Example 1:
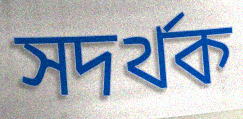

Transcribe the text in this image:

সদৰ্থক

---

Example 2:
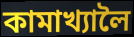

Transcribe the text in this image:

কামাখ্যালৈ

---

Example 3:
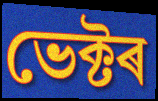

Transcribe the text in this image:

ভেক্টৰ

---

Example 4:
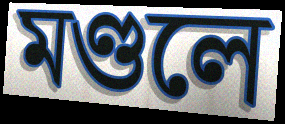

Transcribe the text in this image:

মণ্ডলে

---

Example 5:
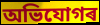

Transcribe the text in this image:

অভিযোগৰ